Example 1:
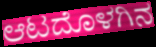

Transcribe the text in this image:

ಆಟದೊಳಗಿನ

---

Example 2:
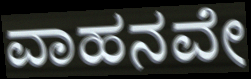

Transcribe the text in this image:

ವಾಹನವೇ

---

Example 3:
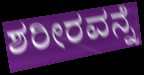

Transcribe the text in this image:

ಶರೀರವನ್ನೆ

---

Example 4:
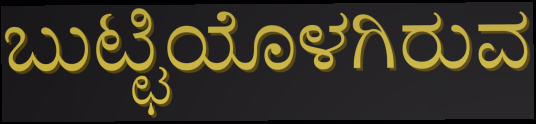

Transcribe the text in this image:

ಬುಟ್ಟಿಯೊಳಗಿರುವ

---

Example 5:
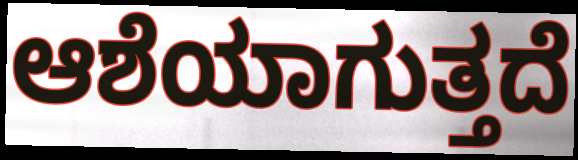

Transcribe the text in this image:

ಆಶೆಯಾಗುತ್ತದೆ